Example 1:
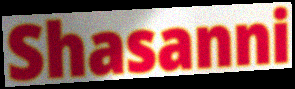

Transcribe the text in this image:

Shasanni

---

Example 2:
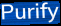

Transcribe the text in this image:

Purify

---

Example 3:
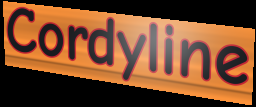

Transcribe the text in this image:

Cordyline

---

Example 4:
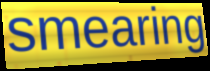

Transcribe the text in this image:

smearing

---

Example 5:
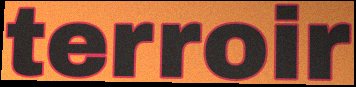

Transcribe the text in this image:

terroir